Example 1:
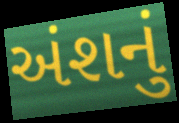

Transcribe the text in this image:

અંશનું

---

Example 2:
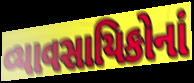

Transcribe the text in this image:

વ્યાવસાયિકોનાં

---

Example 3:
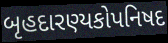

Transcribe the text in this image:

બૃહદારણ્યકોપનિષદ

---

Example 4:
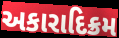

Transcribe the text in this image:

અકારાદિક્રમ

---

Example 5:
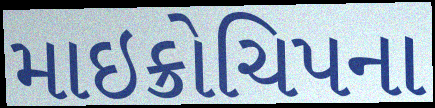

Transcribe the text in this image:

માઇક્રોચિપના